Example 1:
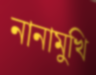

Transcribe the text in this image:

নানামুখি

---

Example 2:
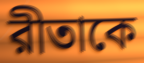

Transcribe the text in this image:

রীতাকে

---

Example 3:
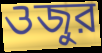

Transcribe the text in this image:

ওজুর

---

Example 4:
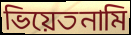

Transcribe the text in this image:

ভিয়েতনামি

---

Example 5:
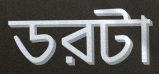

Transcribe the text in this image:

ডরটা